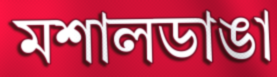
মশালডাঙা